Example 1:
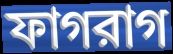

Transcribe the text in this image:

ফাগরাগ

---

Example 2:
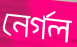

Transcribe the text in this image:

নের্গল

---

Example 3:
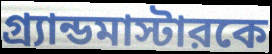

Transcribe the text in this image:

গ্র্যান্ডমাস্টারকে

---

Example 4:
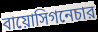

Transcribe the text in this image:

বায়োসিগনেচার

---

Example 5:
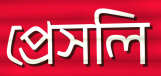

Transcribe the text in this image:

প্রেসলি